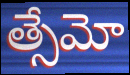
త్సేమో